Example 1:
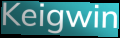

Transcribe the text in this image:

Keigwin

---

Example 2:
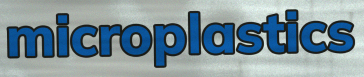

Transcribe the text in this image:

microplastics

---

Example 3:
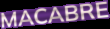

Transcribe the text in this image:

MACABRE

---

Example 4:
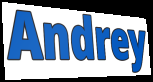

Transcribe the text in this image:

Andrey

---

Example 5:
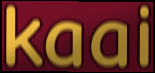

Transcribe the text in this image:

kaai